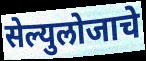
सेल्युलोजाचे